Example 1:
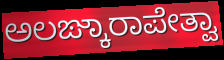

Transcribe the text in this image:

ಅಲಙ್ಕಾರಾಪೇತ್ವಾ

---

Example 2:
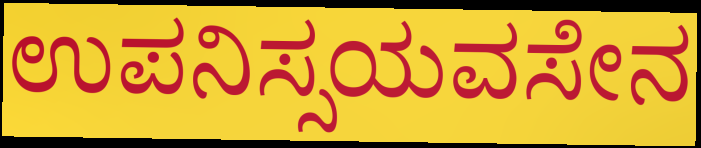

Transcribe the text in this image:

ಉಪನಿಸ್ಸಯವಸೇನ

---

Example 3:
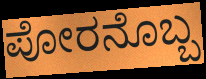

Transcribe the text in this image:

ಪೋರನೊಬ್ಬ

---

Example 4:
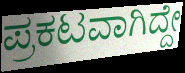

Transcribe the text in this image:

ಪ್ರಕಟವಾಗಿದ್ದೇ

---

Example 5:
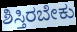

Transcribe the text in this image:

ಶಿಸ್ತಿರಬೇಕು